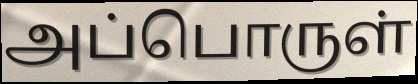
அப்பொருள்